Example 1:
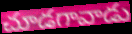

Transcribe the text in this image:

చూడగావాడు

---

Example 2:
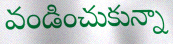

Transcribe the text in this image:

వండించుకున్నా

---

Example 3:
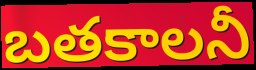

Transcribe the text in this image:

బతకాలనీ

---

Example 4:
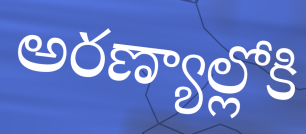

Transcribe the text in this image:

అరణ్యాల్లోకి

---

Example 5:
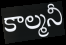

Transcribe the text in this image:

కాల్మనీ